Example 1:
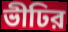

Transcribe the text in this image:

ভীঢির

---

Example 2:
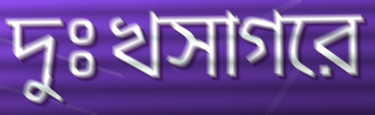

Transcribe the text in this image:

দুঃখসাগরে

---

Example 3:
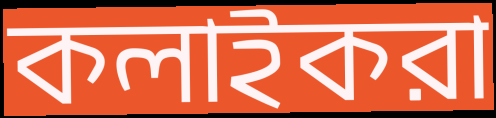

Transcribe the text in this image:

কলাইকরা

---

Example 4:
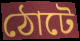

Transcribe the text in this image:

ঠোটে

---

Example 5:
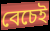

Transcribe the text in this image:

বেচেই